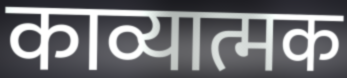
काव्यात्मक